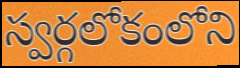
స్వర్గలోకంలోని